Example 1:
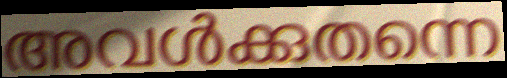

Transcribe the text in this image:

അവൾക്കുതന്നെ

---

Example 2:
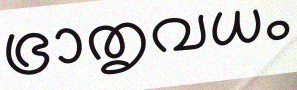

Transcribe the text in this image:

ഭ്രാതൃവധം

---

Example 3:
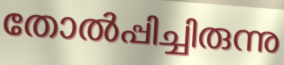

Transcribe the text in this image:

തോൽപ്പിച്ചിരുന്നു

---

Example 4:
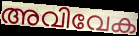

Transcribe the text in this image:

അവിവേക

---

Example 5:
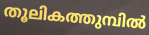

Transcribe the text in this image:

തൂലികത്തുമ്പിൽ